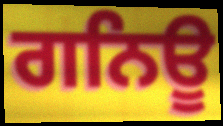
ਗਨਿਊ